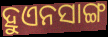
ହୁଏନସାଙ୍ଗ